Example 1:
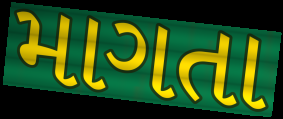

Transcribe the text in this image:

માગતા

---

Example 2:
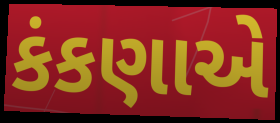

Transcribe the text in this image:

કંકણાએ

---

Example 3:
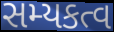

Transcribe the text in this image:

સમ્યકત્વ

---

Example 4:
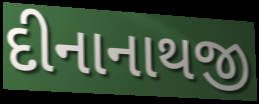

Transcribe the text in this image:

દીનાનાથજી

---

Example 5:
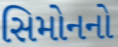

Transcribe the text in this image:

સિમોનનો